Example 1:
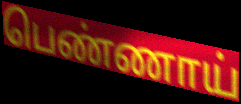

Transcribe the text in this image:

பெண்ணாய்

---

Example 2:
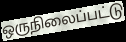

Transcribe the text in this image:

ஒருநிலைப்பட்டு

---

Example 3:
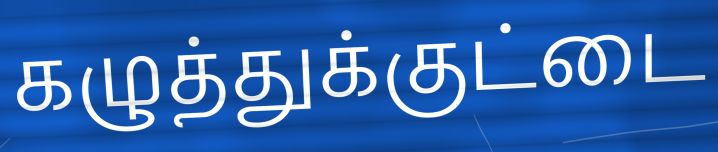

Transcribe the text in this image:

கழுத்துக்குட்டை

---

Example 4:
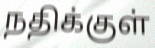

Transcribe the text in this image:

நதிக்குள்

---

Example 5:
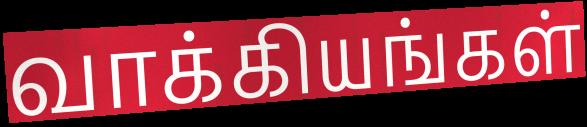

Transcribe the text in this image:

வாக்கியங்கள்